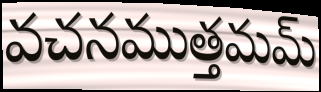
వచనముత్తమమ్